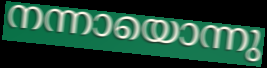
നന്നായൊന്നു